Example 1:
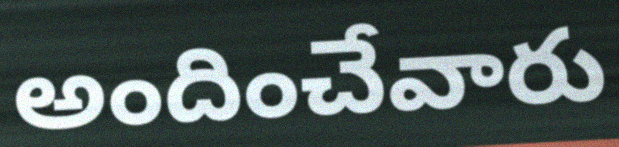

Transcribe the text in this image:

అందించేవారు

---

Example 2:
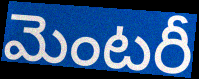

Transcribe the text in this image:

మెంటరీ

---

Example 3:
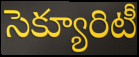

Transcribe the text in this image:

సెక్యూరిటీ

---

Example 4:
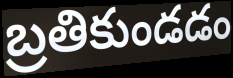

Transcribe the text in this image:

బ్రతికుండడం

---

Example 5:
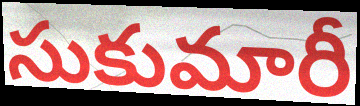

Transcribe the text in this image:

సుకుమారీ